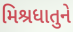
મિશ્રધાતુને